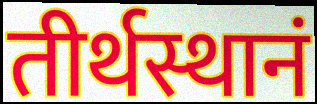
तीर्थस्थानं